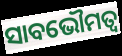
ସାବଭୌମତ୍ୱ